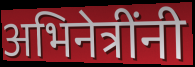
अभिनेत्रींनी